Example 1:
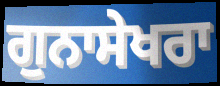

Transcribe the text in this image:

ਗੁਨਾਸੇਖਰਾ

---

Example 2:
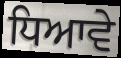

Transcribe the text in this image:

ਧਿਆਵੇ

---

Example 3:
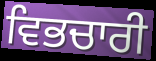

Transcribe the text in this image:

ਵਿਭਚਾਰੀ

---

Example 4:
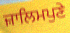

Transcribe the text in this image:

ਜ਼ਾਲਿਮਪੁਣੇ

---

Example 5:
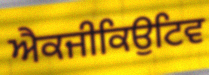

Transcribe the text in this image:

ਐਕਜੀਕਿਉਟਿਵ